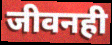
जीवनही